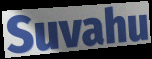
Suvahu